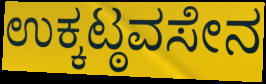
ಉಕ್ಕಟ್ಠವಸೇನ